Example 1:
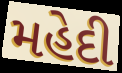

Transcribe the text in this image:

મહેદી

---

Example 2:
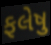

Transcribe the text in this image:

ફલેષુ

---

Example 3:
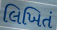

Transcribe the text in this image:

લિખિતં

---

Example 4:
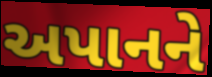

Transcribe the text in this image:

અપાનને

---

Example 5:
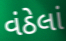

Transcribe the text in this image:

વંઠેલાં